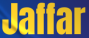
Jaffar